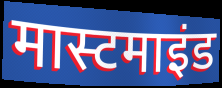
मास्टमाइंड